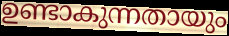
ഉണ്ടാകുന്നതായും